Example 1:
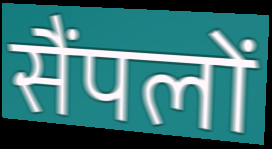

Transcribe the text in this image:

सैंपलों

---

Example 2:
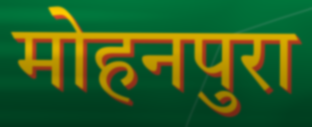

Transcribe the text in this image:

मोहनपुरा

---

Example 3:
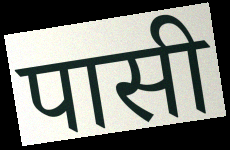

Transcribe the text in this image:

पासी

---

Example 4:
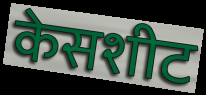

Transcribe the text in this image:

केसशीट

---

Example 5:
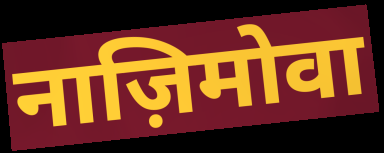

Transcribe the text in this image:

नाज़िमोवा